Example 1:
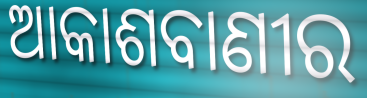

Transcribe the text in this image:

ଆକାଶବାଣୀର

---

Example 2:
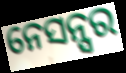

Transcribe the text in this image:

ନେସନ୍ସର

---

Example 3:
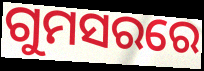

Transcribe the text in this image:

ଗୁମସରରେ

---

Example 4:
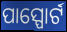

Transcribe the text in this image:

ପାସ୍ପୋର୍ଟ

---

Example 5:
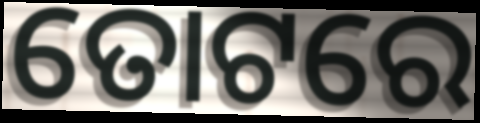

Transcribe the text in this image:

ତୋଟରେ